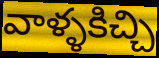
వాళ్ళకిచ్చి